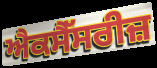
ਐਕਸੈੱਸਰੀਜ਼